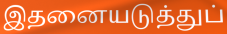
இதனையடுத்துப்